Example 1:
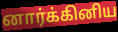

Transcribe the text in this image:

னார்க்கினிய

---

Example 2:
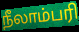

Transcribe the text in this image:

நீலாம்பரி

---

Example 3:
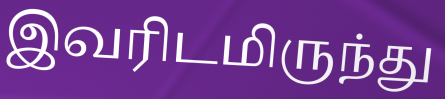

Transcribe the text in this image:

இவரிடமிருந்து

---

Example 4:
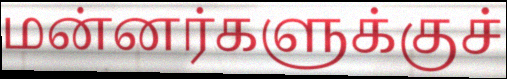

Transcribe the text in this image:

மன்னர்களுக்குச்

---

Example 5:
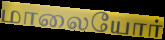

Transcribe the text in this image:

மாலையோர்